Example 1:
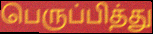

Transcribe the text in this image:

பெருப்பித்து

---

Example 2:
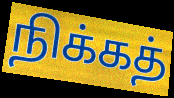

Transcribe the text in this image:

நிக்கத்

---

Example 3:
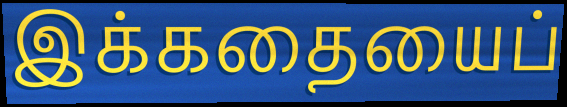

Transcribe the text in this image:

இக்கதையைப்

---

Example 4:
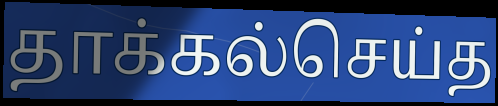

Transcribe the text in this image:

தாக்கல்செய்த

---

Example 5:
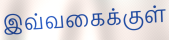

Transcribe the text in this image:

இவ்வகைக்குள்